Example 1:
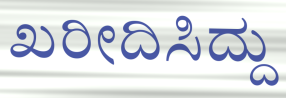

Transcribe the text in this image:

ಖರೀದಿಸಿದ್ದು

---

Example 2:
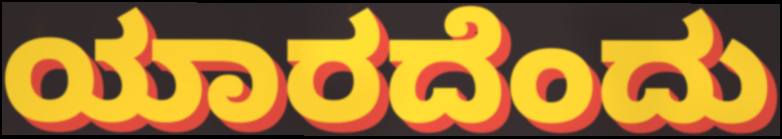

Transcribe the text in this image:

ಯಾರದೆಂದು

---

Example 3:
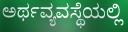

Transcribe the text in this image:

ಅರ್ಥವ್ಯವಸ್ಥೆಯಲ್ಲಿ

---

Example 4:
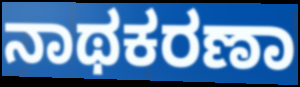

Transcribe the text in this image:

ನಾಥಕರಣಾ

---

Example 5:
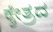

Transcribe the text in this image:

ಕ್ಶೇತ್ರದ